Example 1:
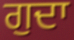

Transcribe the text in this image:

ਗੁਦਾ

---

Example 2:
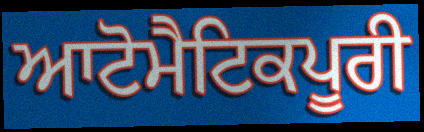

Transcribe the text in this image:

ਆਟੋਮੈਟਿਕਪੂਰੀ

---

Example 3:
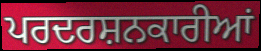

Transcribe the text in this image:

ਪਰਦਰਸ਼ਨਕਾਰੀਆਂ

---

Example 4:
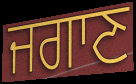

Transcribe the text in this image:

ਜਗਾਣ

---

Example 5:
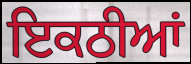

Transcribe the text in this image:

ਇਕਠੀਆਂ